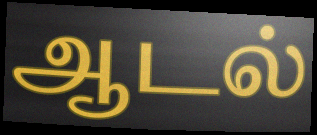
ஆடல்